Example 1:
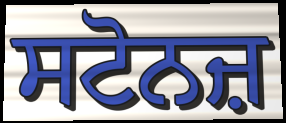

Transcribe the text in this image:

ਸਟੋਨਜ਼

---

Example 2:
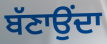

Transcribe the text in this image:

ਬੱਣਾਉਂਦਾ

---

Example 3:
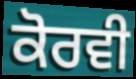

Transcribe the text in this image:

ਕੋਰਵੀ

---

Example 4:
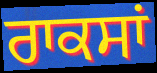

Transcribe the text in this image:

ਰਾਕਸਾਂ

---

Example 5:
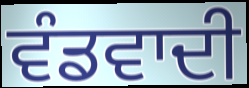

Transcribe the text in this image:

ਵੰਡਵਾਦੀ